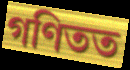
গণিতত